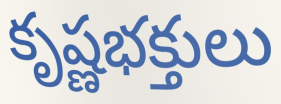
కృష్ణభక్తులు